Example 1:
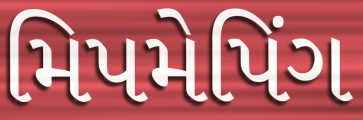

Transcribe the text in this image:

મિપમેપિંગ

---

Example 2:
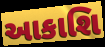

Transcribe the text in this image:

આકાશિ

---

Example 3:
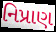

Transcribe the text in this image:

નિપ્રાણ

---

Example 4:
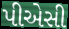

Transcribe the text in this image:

પીએસી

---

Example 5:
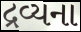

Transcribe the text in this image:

દ્રવ્યના